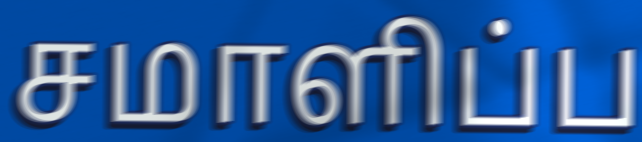
சமாளிப்ப